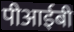
पीआईबी